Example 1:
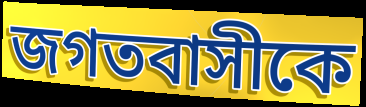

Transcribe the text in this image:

জগতবাসীকে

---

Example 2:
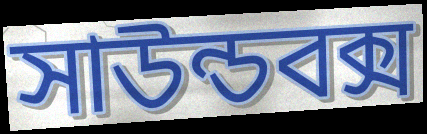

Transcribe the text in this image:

সাউন্ডবক্স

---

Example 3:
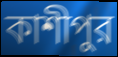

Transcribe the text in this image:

কাশীপুর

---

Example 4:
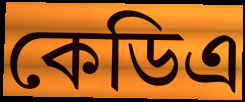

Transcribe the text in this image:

কেডিএ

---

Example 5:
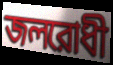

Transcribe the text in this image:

জলরোধী